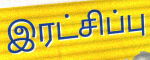
இரட்சிப்பு